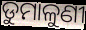
ଡୁମାଳୁଣୀ